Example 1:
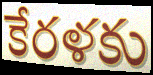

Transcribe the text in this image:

కేరళకు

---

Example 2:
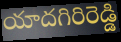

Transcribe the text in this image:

యాదగిరిరెడ్డి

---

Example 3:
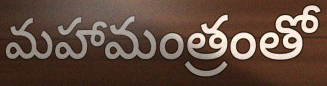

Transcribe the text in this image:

మహామంత్రంతో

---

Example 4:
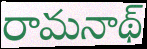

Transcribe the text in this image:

రామనాథ్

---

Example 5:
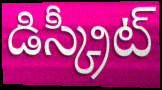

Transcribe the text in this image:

డిస్క్రీట్